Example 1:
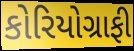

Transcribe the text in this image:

કોરિયોગ્રાફી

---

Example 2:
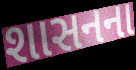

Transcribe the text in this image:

શાસનના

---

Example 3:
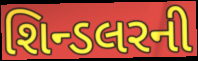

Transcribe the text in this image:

શિન્ડલરની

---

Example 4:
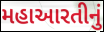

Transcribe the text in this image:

મહાઆરતીનું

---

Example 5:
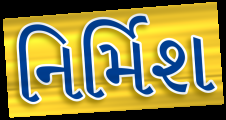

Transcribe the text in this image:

નિર્મિશ